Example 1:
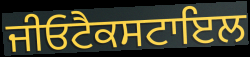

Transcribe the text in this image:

ਜੀਓਟੈਕਸਟਾਇਲ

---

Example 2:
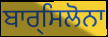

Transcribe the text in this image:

ਬਾਰ੍ਸਿਲੋਨਾ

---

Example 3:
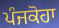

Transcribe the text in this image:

ਪੰਜਕੋਹਾ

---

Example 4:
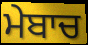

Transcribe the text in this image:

ਮੇਬਾਚ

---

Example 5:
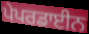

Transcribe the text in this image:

ਪੇਪਰਡਾਈਨ